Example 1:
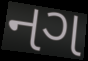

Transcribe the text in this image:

નગ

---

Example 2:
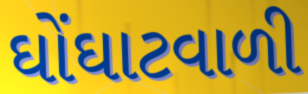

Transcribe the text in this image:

ઘોંઘાટવાળી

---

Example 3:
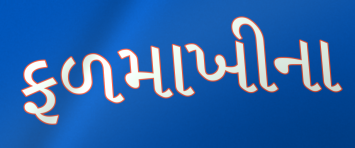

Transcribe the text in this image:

ફળમાખીના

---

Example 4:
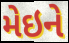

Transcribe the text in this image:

મેઇને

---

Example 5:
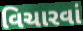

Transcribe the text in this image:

વિચારવાં